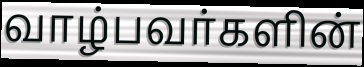
வாழ்பவர்களின்